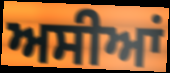
ਅਸੀਆਂ